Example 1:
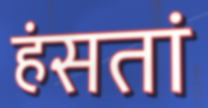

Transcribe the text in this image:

हंसतां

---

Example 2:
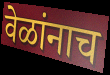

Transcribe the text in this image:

वेळांनाच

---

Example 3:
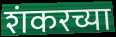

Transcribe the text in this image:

शंकरच्या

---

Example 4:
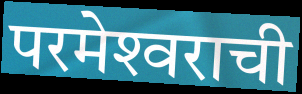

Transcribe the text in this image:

परमेश्‍वराची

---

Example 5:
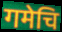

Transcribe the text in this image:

गमेचि